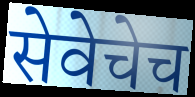
सेवेचेच